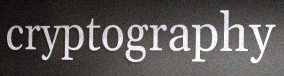
cryptography